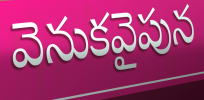
వెనుకవైపున